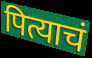
पित्याचं